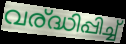
വര്ദ്ധിപ്പിച്ച്